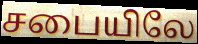
சபையிலே